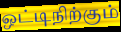
ஒட்டிநிற்கும்